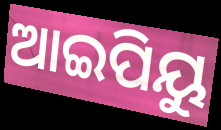
ଆଇପିୟୁ